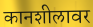
कानशीलावर